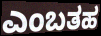
ಎಂಬತಹ